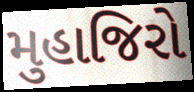
મુહાજિરો